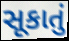
સૂકાતું